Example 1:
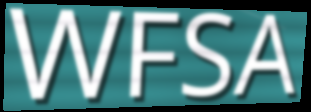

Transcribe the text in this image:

WFSA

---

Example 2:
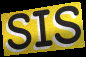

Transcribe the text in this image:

SIS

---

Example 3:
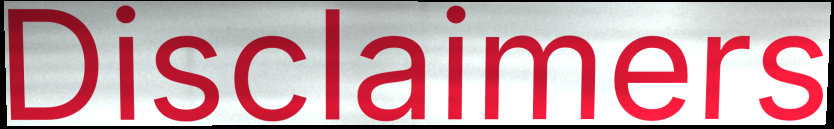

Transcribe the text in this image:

Disclaimers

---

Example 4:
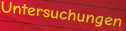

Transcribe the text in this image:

Untersuchungen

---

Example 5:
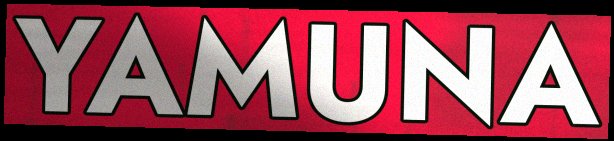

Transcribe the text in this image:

YAMUNA